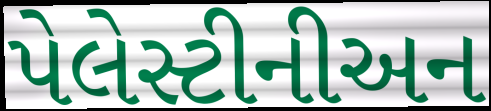
પેલેસ્ટીનીઅન